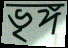
ভৃঙ্গ